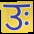
उः